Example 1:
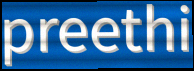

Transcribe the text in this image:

preethi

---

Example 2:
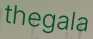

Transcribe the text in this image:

thegala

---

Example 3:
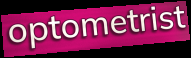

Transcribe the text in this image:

optometrist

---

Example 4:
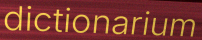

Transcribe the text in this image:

dictionarium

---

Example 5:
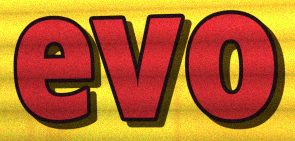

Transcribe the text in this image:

evo